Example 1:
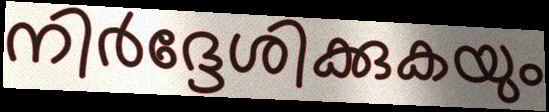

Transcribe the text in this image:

നിർദ്ദേശിക്കുകയും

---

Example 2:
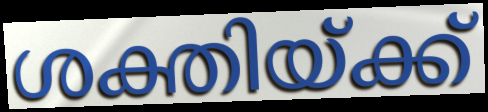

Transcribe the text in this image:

ശക്തിയ്ക്ക്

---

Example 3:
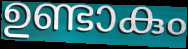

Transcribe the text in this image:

ഉണ്ടാകും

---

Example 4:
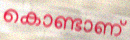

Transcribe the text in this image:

കൊണ്ടാണ്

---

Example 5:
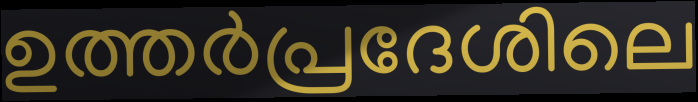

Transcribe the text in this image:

ഉത്തർപ്രദേശിലെ